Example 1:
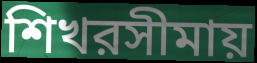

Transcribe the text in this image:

শিখরসীমায়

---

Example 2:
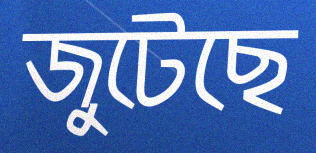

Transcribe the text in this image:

জুটেছে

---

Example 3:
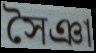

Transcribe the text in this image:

সৈঞা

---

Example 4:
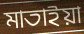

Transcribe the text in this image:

মাতাইয়া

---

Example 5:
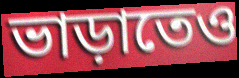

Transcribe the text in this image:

ভাড়াতেও